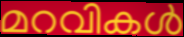
മറവികൾ